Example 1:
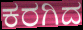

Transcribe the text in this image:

ಕರಗಿದ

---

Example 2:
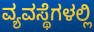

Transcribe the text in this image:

ವ್ಯವಸ್ಥೆಗಳಲ್ಲಿ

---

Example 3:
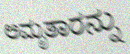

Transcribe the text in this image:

ಅಮೃತಾರನ್ನು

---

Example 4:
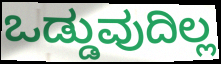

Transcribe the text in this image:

ಒಡ್ಡುವುದಿಲ್ಲ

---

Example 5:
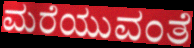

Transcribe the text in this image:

ಮರೆಯುವಂತೆ